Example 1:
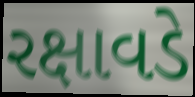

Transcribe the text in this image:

રક્ષાવડે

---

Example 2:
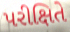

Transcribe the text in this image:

પરીક્ષિતે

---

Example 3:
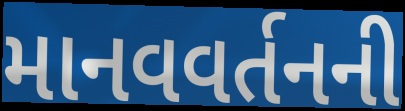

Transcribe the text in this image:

માનવવર્તનની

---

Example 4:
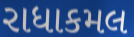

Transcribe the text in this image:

રાધાકમલ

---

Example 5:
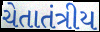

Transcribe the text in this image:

ચેતાતંત્રીય